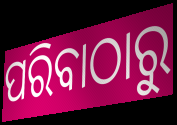
ପରିବାଠାରୁ